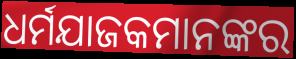
ଧର୍ମଯାଜକମାନଙ୍କର